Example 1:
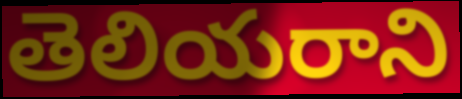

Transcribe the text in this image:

తెలియరాని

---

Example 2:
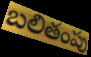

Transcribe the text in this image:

బలితంపు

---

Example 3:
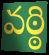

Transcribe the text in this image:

వఠ్ఠి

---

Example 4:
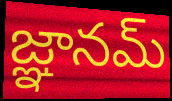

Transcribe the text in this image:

జ్ఞానమ్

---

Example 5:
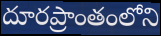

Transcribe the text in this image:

దూరప్రాంతంలోని